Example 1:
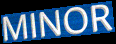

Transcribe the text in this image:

MINOR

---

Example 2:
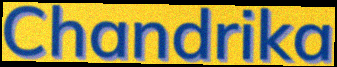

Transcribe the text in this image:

Chandrika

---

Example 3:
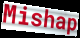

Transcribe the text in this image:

Mishap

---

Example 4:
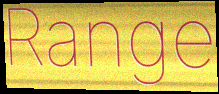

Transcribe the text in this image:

Range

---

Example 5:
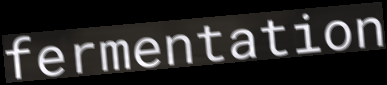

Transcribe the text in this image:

fermentation